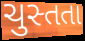
ચુસ્તતા